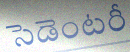
సెడెంటరీ